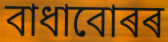
বাধাবোৰৰ